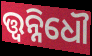
ତ୍ତ୍ଵନ୍ନିଧୌ